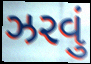
ઝરવું